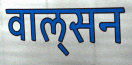
वाल्सन